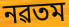
নৱতম